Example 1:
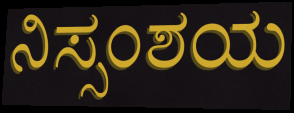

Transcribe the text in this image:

ನಿಸ್ಸಂಶಯ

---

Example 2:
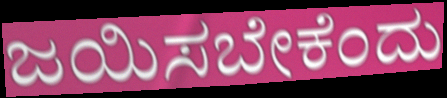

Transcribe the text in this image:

ಜಯಿಸಬೇಕೆಂದು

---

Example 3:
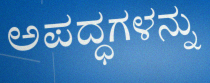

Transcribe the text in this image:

ಅಪದ್ಧಗಳನ್ನು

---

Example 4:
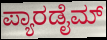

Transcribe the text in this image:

ಪ್ಯಾರಡೈಮ್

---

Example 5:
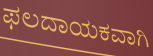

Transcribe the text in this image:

ಫಲದಾಯಕವಾಗಿ